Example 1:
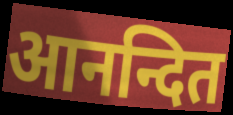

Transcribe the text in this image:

आनन्दित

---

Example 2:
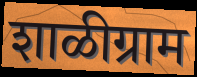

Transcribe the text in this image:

शाळीग्राम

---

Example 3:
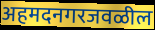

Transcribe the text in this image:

अहमदनगरजवळील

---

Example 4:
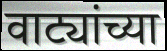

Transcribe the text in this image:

वाट्यांच्या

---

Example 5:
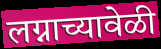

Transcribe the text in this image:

लग्नाच्यावेळी